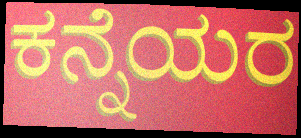
ಕನ್ನೆಯರ